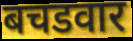
बचडवार